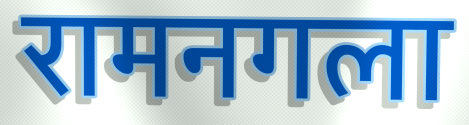
रामनगला